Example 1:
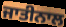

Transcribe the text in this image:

ਜਾਤੀਨਾਲ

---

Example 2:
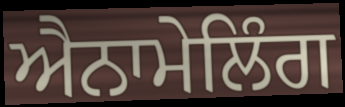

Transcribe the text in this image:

ਐਨਾਮੇਲਿੰਗ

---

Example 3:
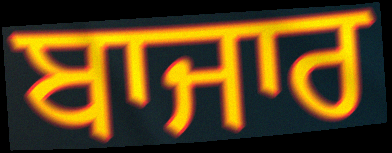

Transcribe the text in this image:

ਬਾਜਾਰ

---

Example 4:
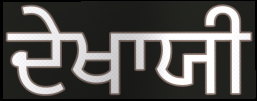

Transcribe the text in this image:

ਦੇਖਾਯੀ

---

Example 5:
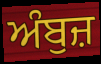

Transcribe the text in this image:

ਅੰਬੁਜ਼